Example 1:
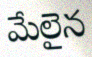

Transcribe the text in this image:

మేలైన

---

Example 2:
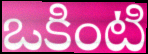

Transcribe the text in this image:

ఒకింటి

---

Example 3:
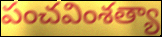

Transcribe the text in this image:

పంచవింశత్యా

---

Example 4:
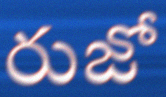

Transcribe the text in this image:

రుజో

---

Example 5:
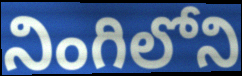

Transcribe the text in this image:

నింగిలోని